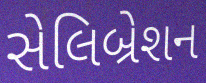
સેલિબ્રેશન